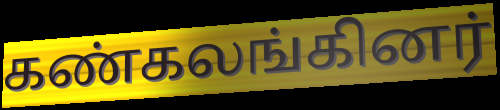
கண்கலங்கினர்